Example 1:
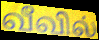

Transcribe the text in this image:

வீவில்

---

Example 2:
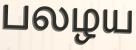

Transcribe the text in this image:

பலழய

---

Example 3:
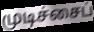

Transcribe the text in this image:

முடிச்சைப்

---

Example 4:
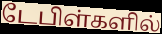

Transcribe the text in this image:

டேபிள்களில்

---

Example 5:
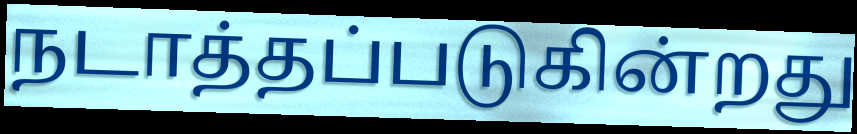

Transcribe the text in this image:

நடாத்தப்படுகின்றது